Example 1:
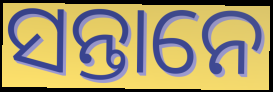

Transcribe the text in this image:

ସନ୍ତାନେ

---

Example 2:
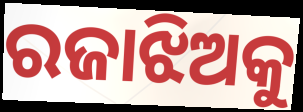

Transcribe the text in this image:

ରଜାଝିଅକୁ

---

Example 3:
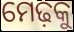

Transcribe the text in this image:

ମେଢ଼କୁ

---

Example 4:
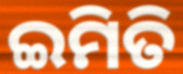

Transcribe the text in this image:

ଇମିତି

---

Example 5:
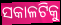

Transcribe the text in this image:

ସକାଳଟିକୁ